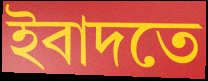
ইবাদতে